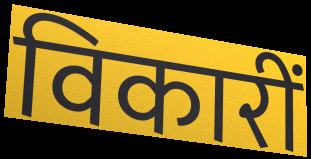
विकारीं